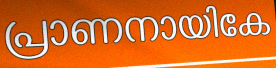
പ്രാണനായികേ